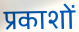
प्रकाशों